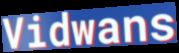
Vidwans